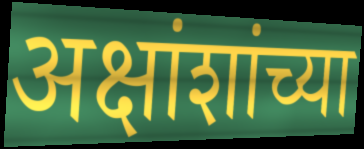
अक्षांशांच्या